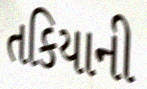
તકિયાની